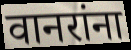
वानरांना